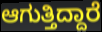
ಆಗುತ್ತಿದ್ದಾರೆ